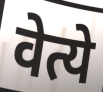
वेत्ये